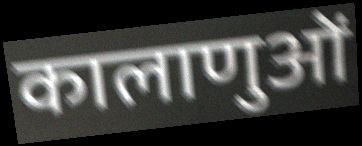
कालाणुओं